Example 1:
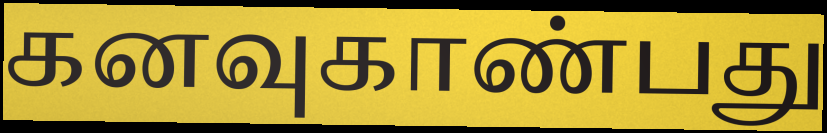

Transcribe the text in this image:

கனவுகாண்பது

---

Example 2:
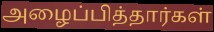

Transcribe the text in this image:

அழைப்பித்தார்கள்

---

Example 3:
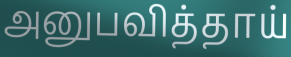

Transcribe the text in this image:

அனுபவித்தாய்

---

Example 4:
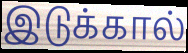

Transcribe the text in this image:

இடுக்கால்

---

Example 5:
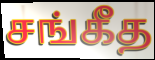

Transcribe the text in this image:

சங்கீத